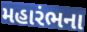
મહારંભના